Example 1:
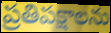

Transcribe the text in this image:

ప్రతిపక్షాలను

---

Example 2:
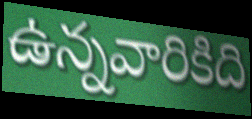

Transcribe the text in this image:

ఉన్నవారికిది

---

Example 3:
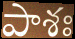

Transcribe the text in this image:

పాశః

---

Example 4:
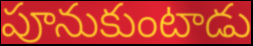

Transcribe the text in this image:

పూనుకుంటాడు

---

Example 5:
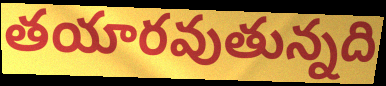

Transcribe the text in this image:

తయారవుతున్నది